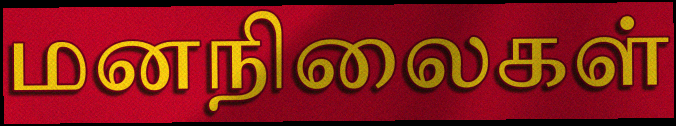
மனநிலைகள்